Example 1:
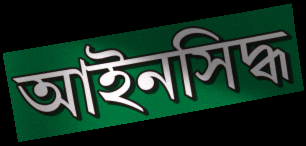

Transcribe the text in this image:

আইনসিদ্ধ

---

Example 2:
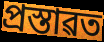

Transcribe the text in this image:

প্ৰস্তাৱত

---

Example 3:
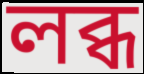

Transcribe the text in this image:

লব্ধ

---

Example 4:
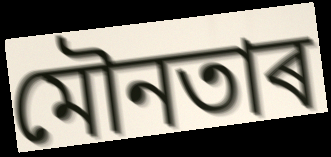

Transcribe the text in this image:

মৌনতাৰ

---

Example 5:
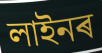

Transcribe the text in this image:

লাইনৰ